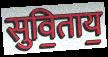
सुवि॒ताय॒